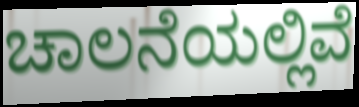
ಚಾಲನೆಯಲ್ಲಿವೆ